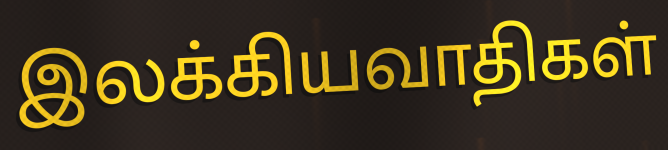
இலக்கியவாதிகள்